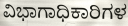
ವಿಭಾಗಾಧಿಕಾರಿಗಳ